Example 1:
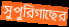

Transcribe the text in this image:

সুপুরিগাছের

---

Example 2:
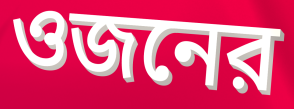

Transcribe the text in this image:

ওজনের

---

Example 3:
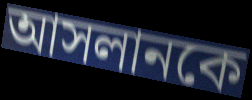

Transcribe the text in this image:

আসলানকে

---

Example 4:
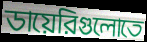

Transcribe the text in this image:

ডায়েরিগুলোতে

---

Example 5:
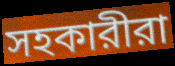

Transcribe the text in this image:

সহকারীরা